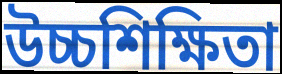
উচ্চশিক্ষিতা